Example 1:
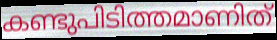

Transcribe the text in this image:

കണ്ടുപിടിത്തമാണിത്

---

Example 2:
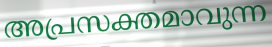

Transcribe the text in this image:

അപ്രസക്തമാവുന്ന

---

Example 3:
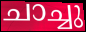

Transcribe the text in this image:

ചാച്ചു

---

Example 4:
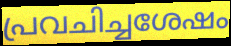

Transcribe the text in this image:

പ്രവചിച്ചശേഷം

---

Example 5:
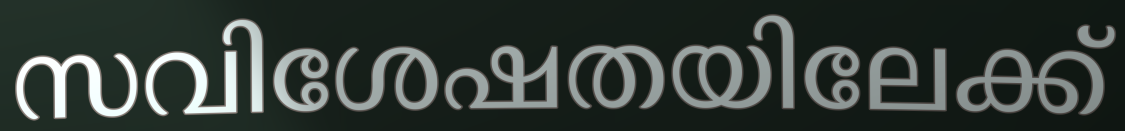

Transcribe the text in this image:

സവിശേഷതയിലേക്ക്